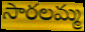
సారలమ్మ